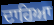
ਦਾਹਿਆ